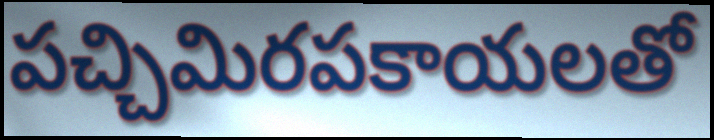
పచ్చిమిరపకాయలతో